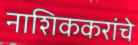
नाशिककरांचे